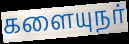
களையுநர்